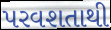
પરવશતાથી